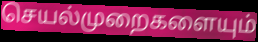
செயல்முறைகளையும்